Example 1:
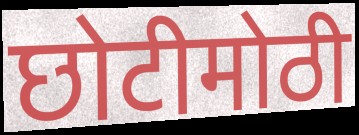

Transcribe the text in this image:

छोटीमोठी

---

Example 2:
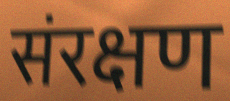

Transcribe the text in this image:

संरक्षण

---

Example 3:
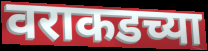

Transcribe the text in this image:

वराकडच्या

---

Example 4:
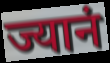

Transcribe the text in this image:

ज्यानं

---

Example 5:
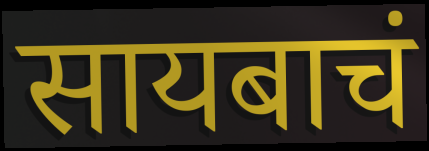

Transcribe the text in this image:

सायबाचं